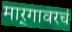
मार्गावरचं